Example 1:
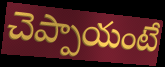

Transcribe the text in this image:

చెప్పాయంటే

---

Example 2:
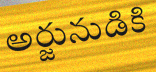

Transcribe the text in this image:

అర్జునుడికి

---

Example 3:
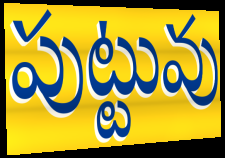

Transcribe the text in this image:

పుట్టువు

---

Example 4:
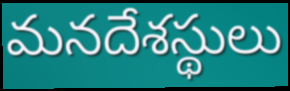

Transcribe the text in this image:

మనదేశస్థులు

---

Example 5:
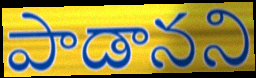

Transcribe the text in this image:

పాడానని